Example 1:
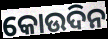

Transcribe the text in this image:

କୋଉଦିନ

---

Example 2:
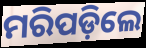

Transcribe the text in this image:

ମରିପଡ଼ିଲେ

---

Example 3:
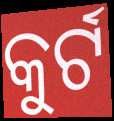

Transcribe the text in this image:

କୁର୍ଟ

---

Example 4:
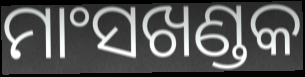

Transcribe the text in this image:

ମାଂସଖଣ୍ଡକ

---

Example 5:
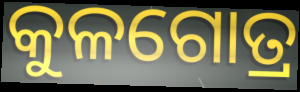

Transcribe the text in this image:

କୁଳଗୋତ୍ର